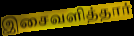
இசைவளித்தார்